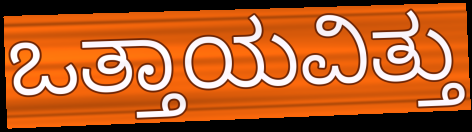
ಒತ್ತಾಯವಿತ್ತು